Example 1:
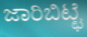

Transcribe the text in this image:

ಜಾರಿಬಿಟ್ಟೆ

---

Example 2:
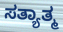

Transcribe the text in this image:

ಸತ್ಯಾತ್ಮ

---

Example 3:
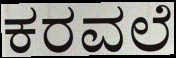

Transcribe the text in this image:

ಕರವಲೆ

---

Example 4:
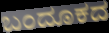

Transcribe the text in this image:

ಬಂದೂಕದ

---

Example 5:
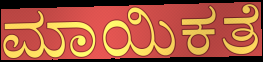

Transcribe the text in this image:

ಮಾಯಿಕತೆ